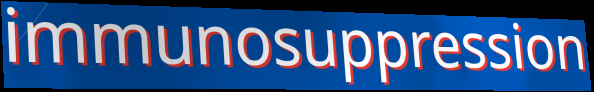
immunosuppression